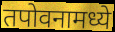
तपोवनामध्ये